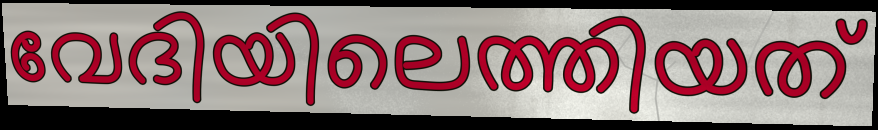
വേദിയിലെത്തിയത്